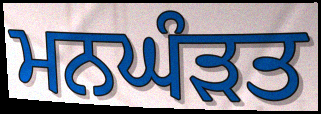
ਮਨਘੰੜਤ